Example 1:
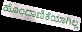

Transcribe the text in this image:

ಹೊಂದಾಣಿಕೆಯಾಗಿಲ್ಲ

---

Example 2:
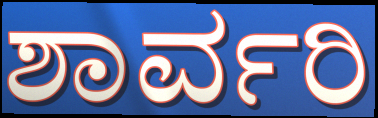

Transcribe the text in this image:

ಶಾರ್ವರಿ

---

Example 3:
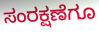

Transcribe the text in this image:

ಸಂರಕ್ಷಣೆಗೂ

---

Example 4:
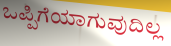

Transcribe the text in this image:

ಒಪ್ಪಿಗೆಯಾಗುವುದಿಲ್ಲ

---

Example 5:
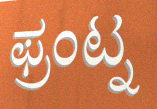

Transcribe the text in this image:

ಫ್ರಂಟ್ನ